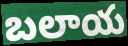
బలాయ